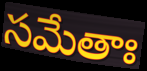
సమేతాః